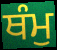
ਥੰਮੁ